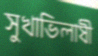
সুখাভিলাষী